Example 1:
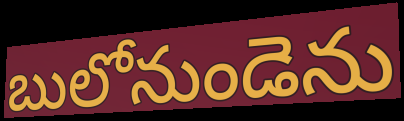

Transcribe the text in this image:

బులోనుండెను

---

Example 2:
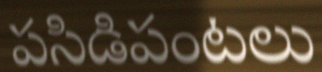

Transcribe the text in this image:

పసిడిపంటలు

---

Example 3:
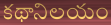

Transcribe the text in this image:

కథానిలయం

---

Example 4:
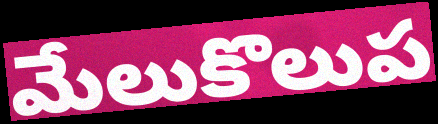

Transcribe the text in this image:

మేలుకొలుప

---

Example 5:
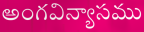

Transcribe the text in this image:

అంగవిన్యాసము